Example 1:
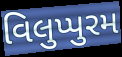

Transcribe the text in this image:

વિલુપ્પુરમ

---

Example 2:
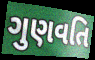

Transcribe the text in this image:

ગુણવતિ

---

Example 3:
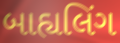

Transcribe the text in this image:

બાહ્યલિંગ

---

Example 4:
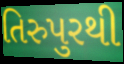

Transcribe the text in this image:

તિરુપુરથી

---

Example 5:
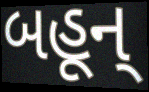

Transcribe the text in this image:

બહૂન્